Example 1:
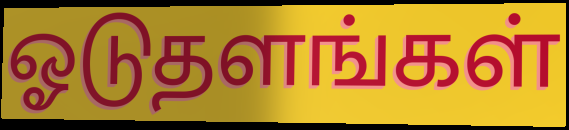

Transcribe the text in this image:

ஓடுதளங்கள்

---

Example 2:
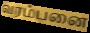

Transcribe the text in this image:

வரம்பனை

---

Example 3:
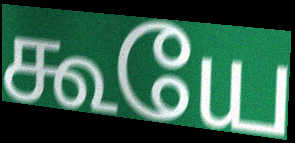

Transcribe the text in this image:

கூயே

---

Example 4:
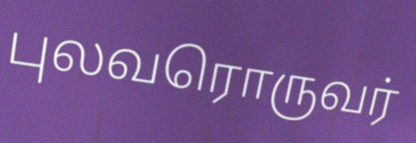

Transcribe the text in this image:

புலவரொருவர்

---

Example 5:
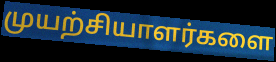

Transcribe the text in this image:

முயற்சியாளர்களை